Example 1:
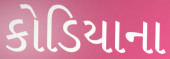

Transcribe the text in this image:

કોડિયાના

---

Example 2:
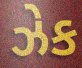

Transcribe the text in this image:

ઝેક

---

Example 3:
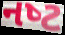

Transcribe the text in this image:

નષ્‍ટ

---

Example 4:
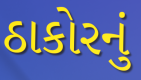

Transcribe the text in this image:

ઠાકોરનું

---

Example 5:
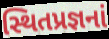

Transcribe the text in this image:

સ્થિતપ્રજ્ઞનાં